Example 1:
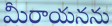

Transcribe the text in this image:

మీరాయనను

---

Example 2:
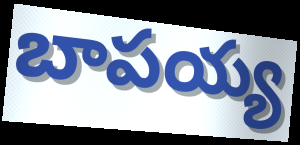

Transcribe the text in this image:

బాపయ్య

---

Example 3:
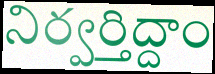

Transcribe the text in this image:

నిర్వర్తిద్దాం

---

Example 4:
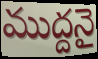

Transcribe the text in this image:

ముద్దనై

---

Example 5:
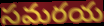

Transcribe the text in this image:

సమరయ